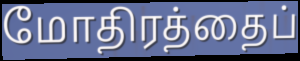
மோதிரத்தைப்